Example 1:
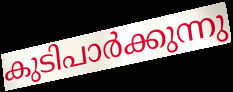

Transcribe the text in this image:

കുടിപാർക്കുന്നു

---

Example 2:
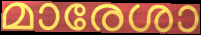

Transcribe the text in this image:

മാരേശാ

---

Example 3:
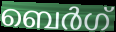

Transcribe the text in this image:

ബെർഗ്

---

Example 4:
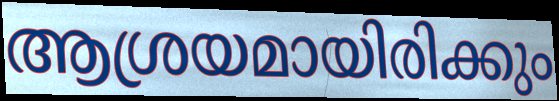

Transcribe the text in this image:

ആശ്രയമായിരിക്കും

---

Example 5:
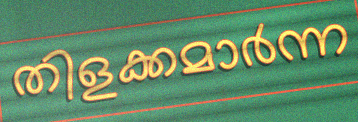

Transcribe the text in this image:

തിളക്കമാർന്ന